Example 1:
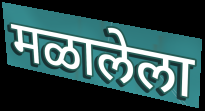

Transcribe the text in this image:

मळालेला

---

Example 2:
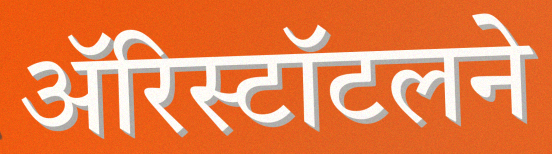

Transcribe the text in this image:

ॲरिस्टॉटलने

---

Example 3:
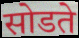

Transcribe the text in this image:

सोडते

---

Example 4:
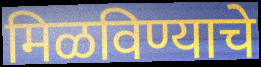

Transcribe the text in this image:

मिळविण्याचे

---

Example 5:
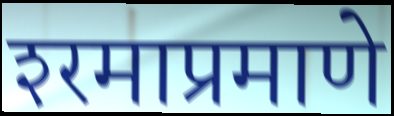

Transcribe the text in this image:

श्रमाप्रमाणे